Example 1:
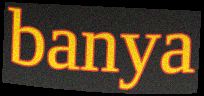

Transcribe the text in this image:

banya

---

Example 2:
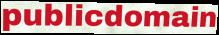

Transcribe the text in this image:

publicdomain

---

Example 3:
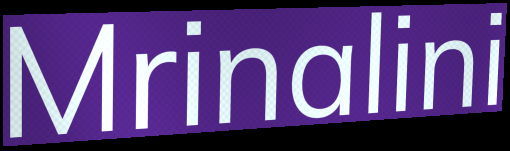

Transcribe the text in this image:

Mrinalini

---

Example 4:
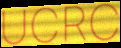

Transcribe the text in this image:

UCRC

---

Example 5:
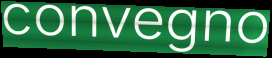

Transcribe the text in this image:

convegno